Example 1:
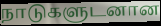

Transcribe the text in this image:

நாடுகளுடனான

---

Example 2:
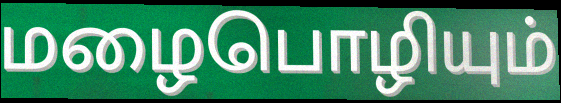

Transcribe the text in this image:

மழைபொழியும்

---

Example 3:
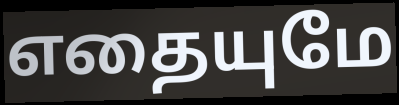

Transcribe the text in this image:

எதையுமே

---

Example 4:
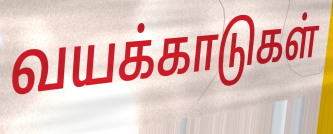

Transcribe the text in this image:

வயக்காடுகள்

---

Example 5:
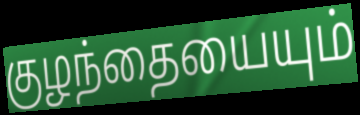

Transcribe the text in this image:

குழந்தையையும்